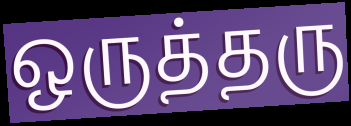
ஒருத்தரு